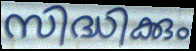
സിദ്ധിക്കും